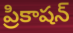
ప్రికాషన్